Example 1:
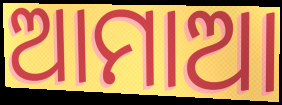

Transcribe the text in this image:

ଆମାଆ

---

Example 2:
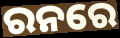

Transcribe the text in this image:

ରନରେ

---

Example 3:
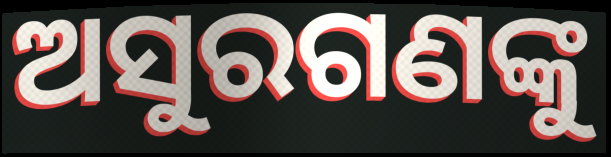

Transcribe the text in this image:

ଅସୁରଗଣଙ୍କୁ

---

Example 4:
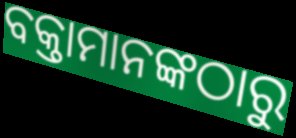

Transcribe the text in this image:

ବକ୍ତାମାନଙ୍କଠାରୁ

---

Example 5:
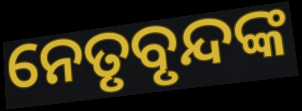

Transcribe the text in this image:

ନେତୃବୃନ୍ଦଙ୍କ